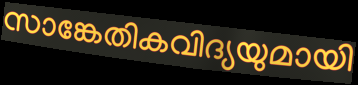
സാങ്കേതികവിദ്യയുമായി